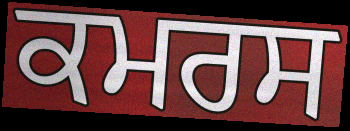
ਕਮਰਸ